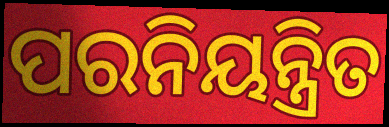
ପରନିୟନ୍ତ୍ରିତ